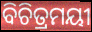
ବିଚିତ୍ରମୟୀ